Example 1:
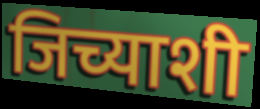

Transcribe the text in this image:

जिच्याशी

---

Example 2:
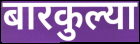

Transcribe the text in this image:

बारकुल्या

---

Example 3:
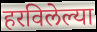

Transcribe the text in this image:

हरविलेल्या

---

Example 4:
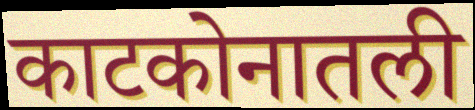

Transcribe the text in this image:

काटकोनातली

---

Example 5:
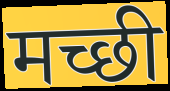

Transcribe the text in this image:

मच्छी